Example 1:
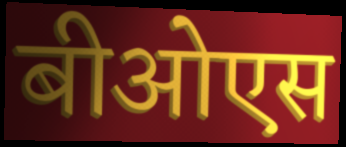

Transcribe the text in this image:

बीओएस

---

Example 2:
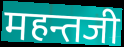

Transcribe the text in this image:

महन्तजी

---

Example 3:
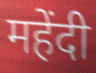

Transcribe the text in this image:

महेंदी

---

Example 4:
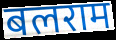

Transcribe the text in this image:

बलराम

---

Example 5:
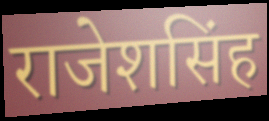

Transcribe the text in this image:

राजेशसिंह